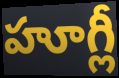
హూగ్లీ